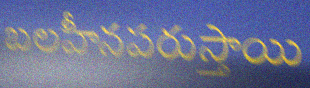
బలహీనపరుస్తాయి